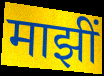
माझीं